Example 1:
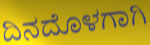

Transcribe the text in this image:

ದಿನದೊಳಗಾಗಿ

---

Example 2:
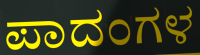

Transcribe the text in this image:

ಪಾದಂಗಳ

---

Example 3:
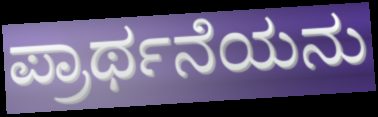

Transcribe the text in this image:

ಪ್ರಾರ್ಥನೆಯನು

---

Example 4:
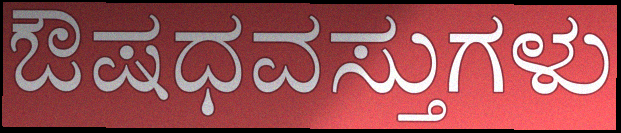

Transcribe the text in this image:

ಔಷಧವಸ್ತುಗಳು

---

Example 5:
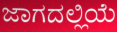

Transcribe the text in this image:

ಜಾಗದಲ್ಲಿಯೆ